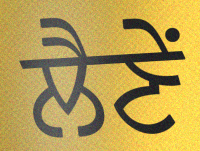
ਲੈਣੇਂ